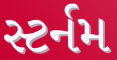
સ્ટર્નમ